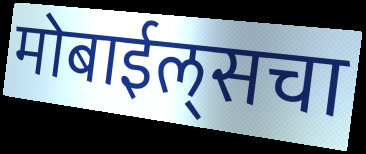
मोबाईल्सचा